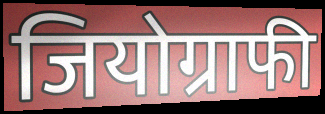
जियोग्राफी